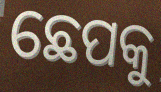
ଛେପକୁ